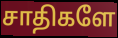
சாதிகளே